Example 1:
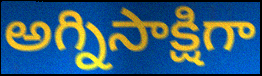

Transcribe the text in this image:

అగ్నిసాక్షిగా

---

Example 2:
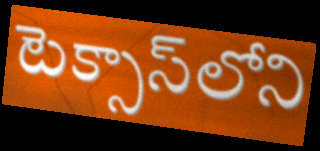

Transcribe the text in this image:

టెక్సాస్‌లోని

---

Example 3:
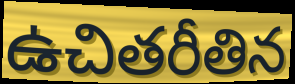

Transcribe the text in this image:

ఉచితరీతిన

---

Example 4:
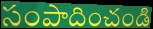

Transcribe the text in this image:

సంపాదించండి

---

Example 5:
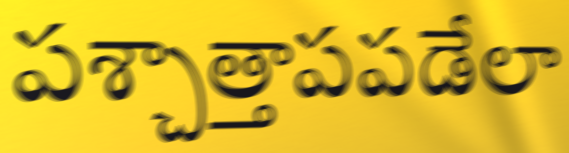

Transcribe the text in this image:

పశ్చాత్తాపపడేలా